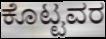
ಕೊಟ್ಟವರ